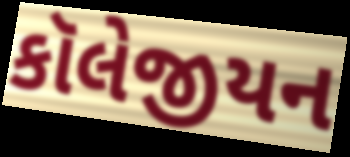
કૉલેજીયન